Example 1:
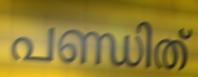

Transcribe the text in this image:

പണ്ഡിത്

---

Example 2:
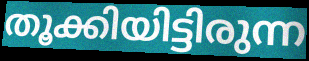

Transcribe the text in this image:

തൂക്കിയിട്ടിരുന്ന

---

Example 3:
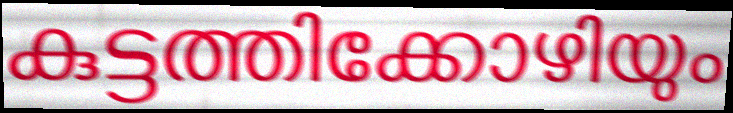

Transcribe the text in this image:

കുട്ടത്തിക്കോഴിയും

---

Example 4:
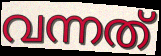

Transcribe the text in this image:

വന്നത്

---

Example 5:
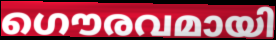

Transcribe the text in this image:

ഗൌരവമായി